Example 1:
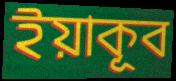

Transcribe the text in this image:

ইয়াকূব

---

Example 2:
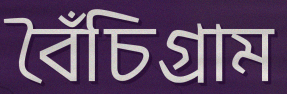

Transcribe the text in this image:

বৈঁচিগ্রাম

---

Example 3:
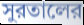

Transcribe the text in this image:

সুরতালের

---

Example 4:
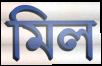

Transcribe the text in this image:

মিল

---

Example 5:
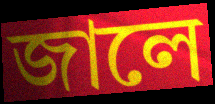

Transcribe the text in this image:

জালে